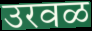
उरवळ